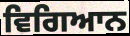
ਵਿਗਿਆਨ